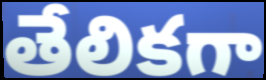
తేలికగా